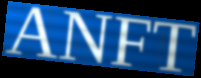
ANFT